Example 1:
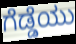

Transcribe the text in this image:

ಗೆಡ್ಡೆಯು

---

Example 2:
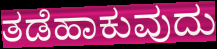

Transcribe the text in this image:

ತಡೆಹಾಕುವುದು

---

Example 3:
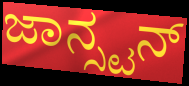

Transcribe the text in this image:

ಜಾನ್ಸ್ಟನ್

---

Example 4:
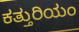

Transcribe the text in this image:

ಕತ್ತುರಿಯಂ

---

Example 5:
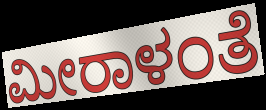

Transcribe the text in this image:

ಮೀರಾಳಂತೆ